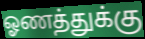
ஓணத்துக்கு